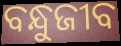
ବନ୍ଧୁଜୀବ